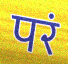
परं